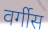
वर्गीस